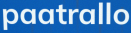
paatrallo